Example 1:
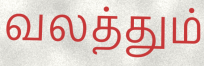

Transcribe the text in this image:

வலத்தும்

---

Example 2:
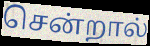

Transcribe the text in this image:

சென்றால்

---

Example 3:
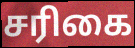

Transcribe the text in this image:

சரிகை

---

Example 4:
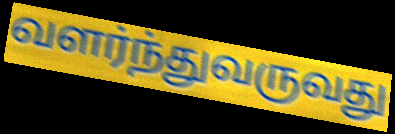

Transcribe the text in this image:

வளர்ந்துவருவது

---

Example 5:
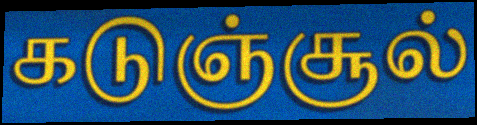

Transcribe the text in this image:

கடுஞ்சூல்